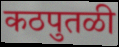
कठपुतळी